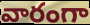
వారంగా